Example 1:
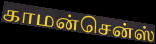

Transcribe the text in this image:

காமன்சென்ஸ்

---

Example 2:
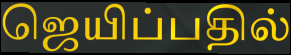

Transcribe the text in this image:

ஜெயிப்பதில்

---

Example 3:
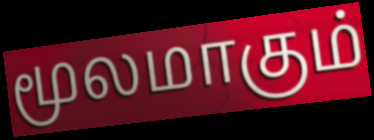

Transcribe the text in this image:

மூலமாகும்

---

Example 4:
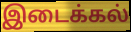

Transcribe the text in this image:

இடைக்கல்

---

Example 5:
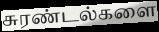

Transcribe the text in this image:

சுரண்டல்களை